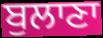
ਬੁਲਾਣਾ